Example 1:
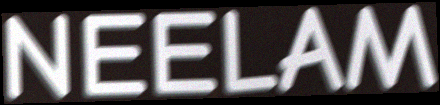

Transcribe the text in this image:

NEELAM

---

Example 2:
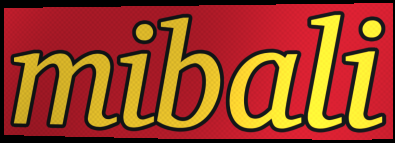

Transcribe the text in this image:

mibali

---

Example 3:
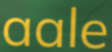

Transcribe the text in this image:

aale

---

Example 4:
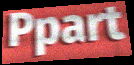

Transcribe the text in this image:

Ppart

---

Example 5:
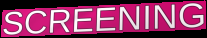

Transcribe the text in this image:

SCREENING